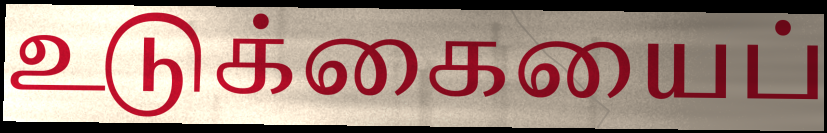
உடுக்கையைப்